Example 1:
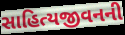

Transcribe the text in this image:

સાહિત્યજીવનની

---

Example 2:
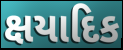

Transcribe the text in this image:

ક્ષયાદિક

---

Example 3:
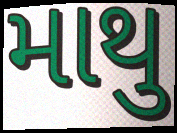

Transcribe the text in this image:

માથુ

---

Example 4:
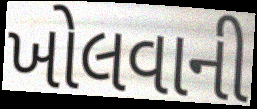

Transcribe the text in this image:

ખોલવાની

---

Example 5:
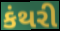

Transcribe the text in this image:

કંથરી